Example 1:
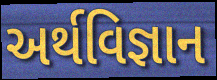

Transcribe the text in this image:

અર્થવિજ્ઞાન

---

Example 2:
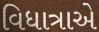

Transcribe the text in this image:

વિધાત્રાએ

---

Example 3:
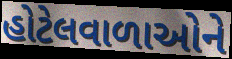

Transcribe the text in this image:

હોટેલવાળાઓને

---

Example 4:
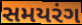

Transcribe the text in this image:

સમયરંગ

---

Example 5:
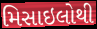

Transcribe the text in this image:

મિસાઇલોથી